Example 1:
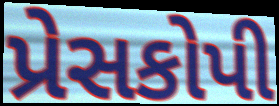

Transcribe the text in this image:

પ્રેસકોપી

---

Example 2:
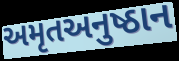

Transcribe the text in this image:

અમૃતઅનુષ્ઠાન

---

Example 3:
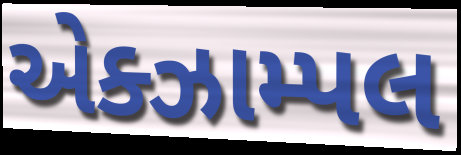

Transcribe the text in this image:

એક્ઝામ્પલ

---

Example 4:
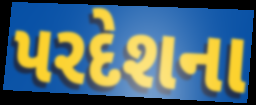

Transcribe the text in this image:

પરદેશના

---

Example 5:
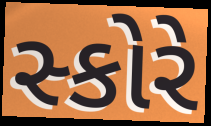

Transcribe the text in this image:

સ્કોરે